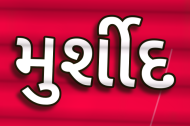
મુર્શીદ